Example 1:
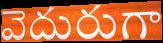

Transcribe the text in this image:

వెదురుగా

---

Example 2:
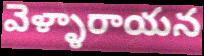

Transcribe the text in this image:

వెళ్ళారాయన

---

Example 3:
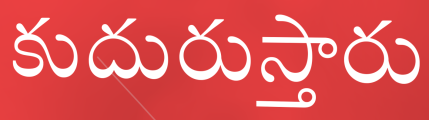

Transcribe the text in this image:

కుదురుస్తారు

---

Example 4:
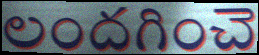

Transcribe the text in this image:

లందగించె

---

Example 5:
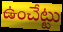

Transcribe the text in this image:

ఉంచేట్టు